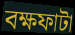
বক্ষফাটা